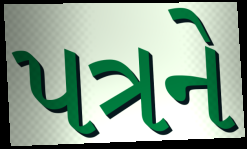
પત્રને